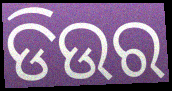
ଡିଉର